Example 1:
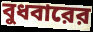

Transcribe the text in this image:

বুধবারের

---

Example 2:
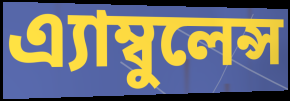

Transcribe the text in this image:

এ্যাম্বুলেন্স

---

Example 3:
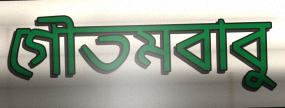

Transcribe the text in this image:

গৌতমবাবু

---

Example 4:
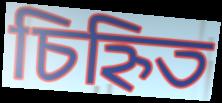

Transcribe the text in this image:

চিহ্নিত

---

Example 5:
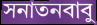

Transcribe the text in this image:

সনাতনবাবু